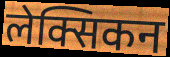
लेक्सिकन